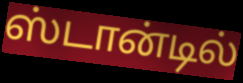
ஸ்டான்டில்